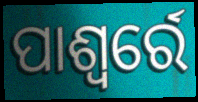
ପାଶ୍ୱର୍ରେ